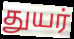
துயர்